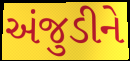
અંજુડીને